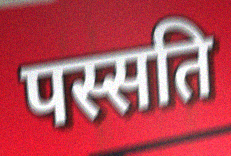
पस्सति